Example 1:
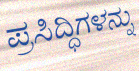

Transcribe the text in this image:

ಪ್ರಸಿದ್ಧಿಗಳನ್ನು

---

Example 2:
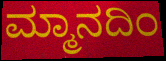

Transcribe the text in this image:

ಮ್ಮಾನದಿಂ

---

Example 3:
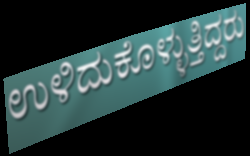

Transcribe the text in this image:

ಉಳಿದುಕೊಳ್ಳುತ್ತಿದ್ದರು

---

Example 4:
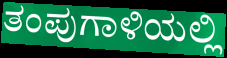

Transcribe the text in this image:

ತಂಪುಗಾಳಿಯಲ್ಲಿ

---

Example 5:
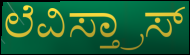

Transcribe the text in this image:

ಲೆವಿಸ್ತ್ರಾಸ್